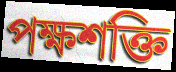
পক্ষশক্তি